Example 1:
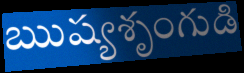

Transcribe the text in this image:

ఋష్యశృంగుడి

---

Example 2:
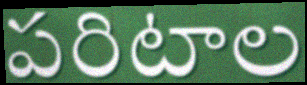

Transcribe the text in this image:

పరిటాల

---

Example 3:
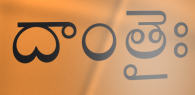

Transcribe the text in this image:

దాంతైః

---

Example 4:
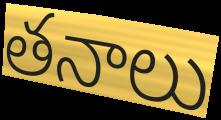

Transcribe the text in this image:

తనాలు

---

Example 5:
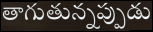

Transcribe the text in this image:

తాగుతున్నప్పుడు